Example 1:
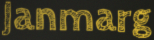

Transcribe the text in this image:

Janmarg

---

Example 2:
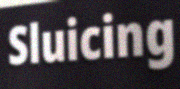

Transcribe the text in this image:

Sluicing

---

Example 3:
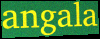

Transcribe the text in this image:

angala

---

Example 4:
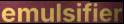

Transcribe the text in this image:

emulsifier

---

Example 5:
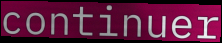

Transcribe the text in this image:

continuer